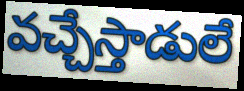
వచ్చేస్తాడులే